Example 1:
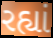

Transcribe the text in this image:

રહ્યાં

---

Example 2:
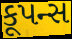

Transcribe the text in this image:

કૂપન્સ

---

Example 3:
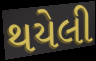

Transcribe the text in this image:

થયેલી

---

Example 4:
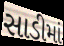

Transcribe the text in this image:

સાડીમાં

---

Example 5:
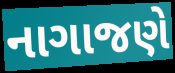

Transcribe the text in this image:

નાગાજણે